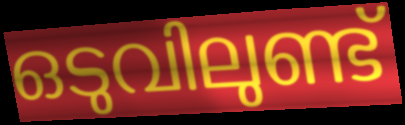
ഒടുവിലുണ്ട്